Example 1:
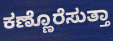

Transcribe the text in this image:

ಕಣ್ಣೊರೆಸುತ್ತಾ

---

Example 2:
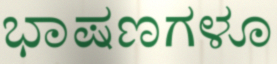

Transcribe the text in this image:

ಭಾಷಣಗಳೂ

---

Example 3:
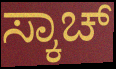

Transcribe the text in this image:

ಸ್ಕಾಚ್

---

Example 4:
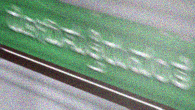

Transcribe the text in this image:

ರೋದಿಸುತ್ತಿರುವಂತೆ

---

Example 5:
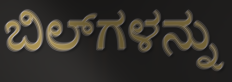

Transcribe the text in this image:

ಬಿಲ್‌ಗಳನ್ನು